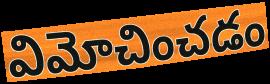
విమోచించడం